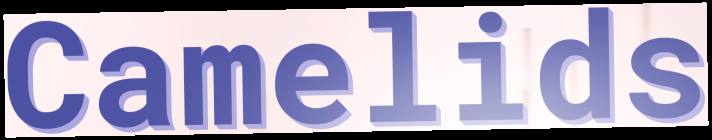
Camelids